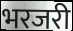
भरजरी